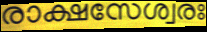
രാക്ഷസേശ്വരഃ